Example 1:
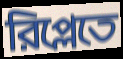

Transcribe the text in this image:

রিপ্লেতে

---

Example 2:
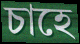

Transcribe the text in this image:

চাহে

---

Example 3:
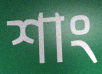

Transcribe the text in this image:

শাং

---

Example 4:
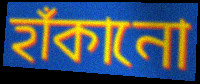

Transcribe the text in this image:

হাঁকানো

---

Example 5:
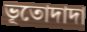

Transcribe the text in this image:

ভূতোদাদা